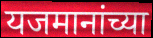
यजमानांच्या